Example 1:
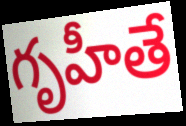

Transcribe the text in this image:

గృహీతే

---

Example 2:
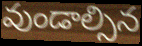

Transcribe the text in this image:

వుండాల్సిన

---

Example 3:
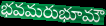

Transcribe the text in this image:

భవమరుభూమౌ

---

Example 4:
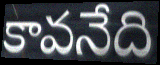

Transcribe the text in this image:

కావనేది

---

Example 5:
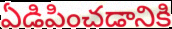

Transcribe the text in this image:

ఏడిపించడానికి